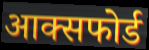
आक्सफोर्ड